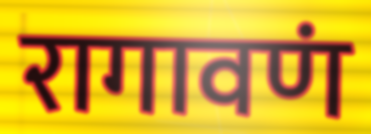
रागावणं